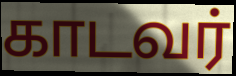
காடவர்